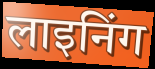
लाइनिंग